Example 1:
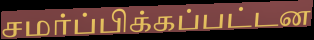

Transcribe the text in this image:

சமர்ப்பிக்கப்பட்டன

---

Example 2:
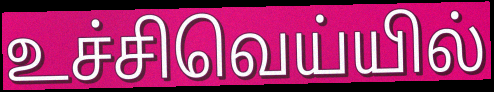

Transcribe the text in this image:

உச்சிவெய்யில்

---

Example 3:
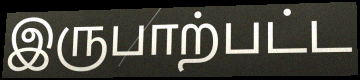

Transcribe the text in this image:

இருபாற்பட்ட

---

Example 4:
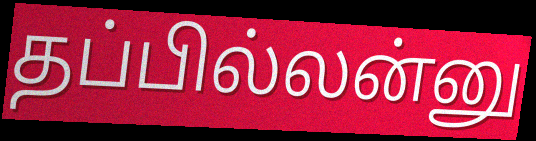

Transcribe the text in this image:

தப்பில்லன்னு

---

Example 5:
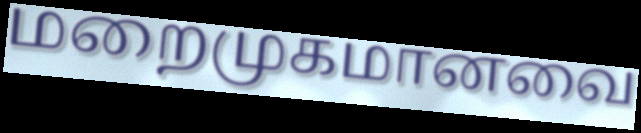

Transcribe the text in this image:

மறைமுகமானவை